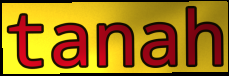
tanah